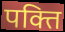
पक्ति